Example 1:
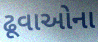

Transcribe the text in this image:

ઢૂવાઓના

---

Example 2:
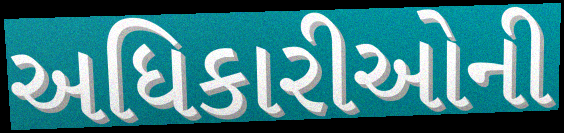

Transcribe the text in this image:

અધિકારીઓની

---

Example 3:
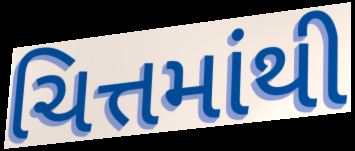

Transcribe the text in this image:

ચિત્તમાંથી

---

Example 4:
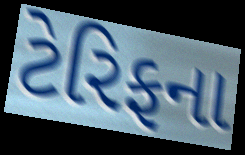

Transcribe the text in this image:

ટેરિફના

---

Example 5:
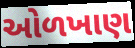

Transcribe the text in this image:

ઓળખાણ